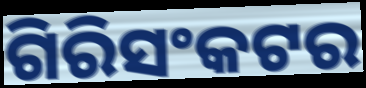
ଗିରିସଂକଟର